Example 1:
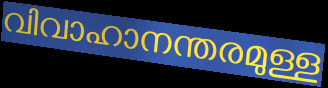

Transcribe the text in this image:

വിവാഹാനന്തരമുള്ള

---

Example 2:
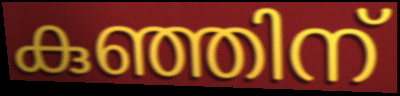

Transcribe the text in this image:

കുഞ്ഞിന്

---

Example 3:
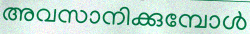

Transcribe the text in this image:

അവസാനിക്കുമ്പോൾ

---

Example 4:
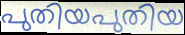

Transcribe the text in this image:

പുതിയപുതിയ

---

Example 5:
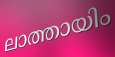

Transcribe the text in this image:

ലാത്തായിം